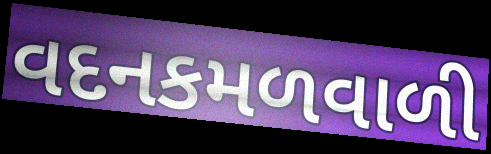
વદનકમળવાળી